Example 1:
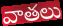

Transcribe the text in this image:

వాతలు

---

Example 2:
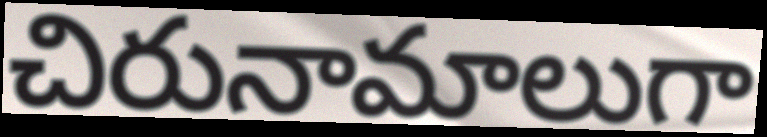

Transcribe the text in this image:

చిరునామాలుగా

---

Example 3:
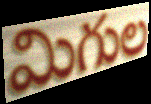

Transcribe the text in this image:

మిగుల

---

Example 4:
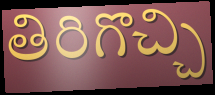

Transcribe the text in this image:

తిరిగొచ్చి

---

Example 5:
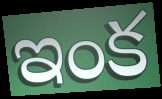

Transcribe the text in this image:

ఇంక